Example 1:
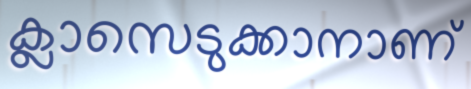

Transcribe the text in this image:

ക്ലാസെടുക്കാനാണ്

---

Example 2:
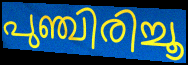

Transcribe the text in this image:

പുഞ്ചിരിച്ചൂ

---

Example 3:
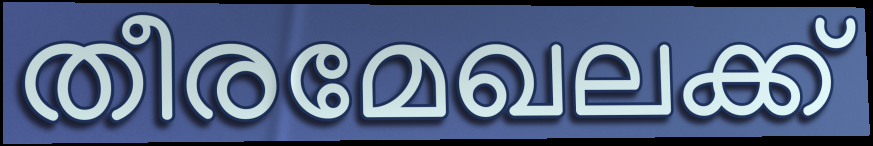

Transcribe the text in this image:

തീരമേഖലക്ക്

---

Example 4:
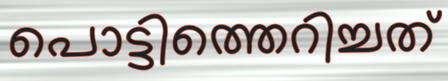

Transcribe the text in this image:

പൊട്ടിത്തെറിച്ചത്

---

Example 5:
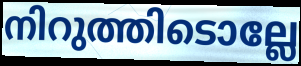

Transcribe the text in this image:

നിറുത്തിടൊല്ലേ